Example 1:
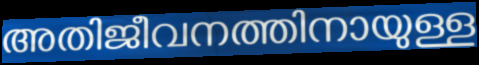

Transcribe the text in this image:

അതിജീവനത്തിനായുള്ള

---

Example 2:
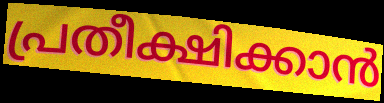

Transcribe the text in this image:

പ്രതീക്ഷിക്കാൻ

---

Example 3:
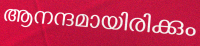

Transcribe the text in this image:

ആനന്ദമായിരിക്കും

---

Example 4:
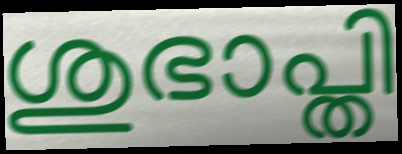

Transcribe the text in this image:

ശുഭാപ്തി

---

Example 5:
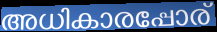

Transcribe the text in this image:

അധികാരപ്പോര്